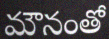
మౌనంతో